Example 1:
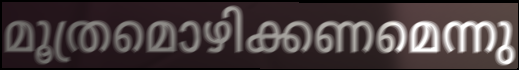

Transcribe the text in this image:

മൂത്രമൊഴിക്കണമെന്നു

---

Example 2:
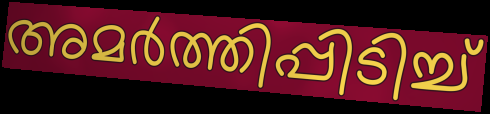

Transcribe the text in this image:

അമർത്തിപ്പിടിച്ച്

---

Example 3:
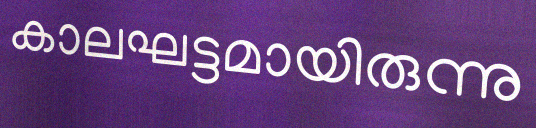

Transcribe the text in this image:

കാലഘട്ടമായിരുന്നു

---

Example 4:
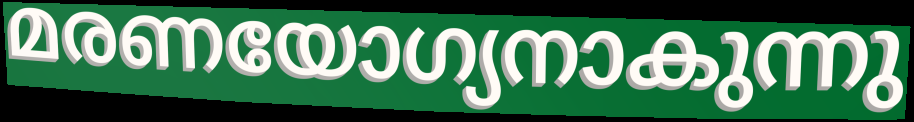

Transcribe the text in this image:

മരണയോഗ്യനാകുന്നു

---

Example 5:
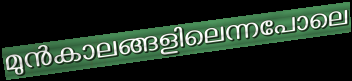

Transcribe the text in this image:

മുൻകാലങ്ങളിലെന്നപോലെ